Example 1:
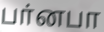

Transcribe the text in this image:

பர்னபா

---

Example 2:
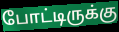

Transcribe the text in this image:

போட்டிருக்கு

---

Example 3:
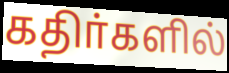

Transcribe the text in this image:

கதிர்களில்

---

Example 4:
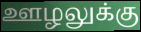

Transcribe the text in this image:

ஊழலுக்கு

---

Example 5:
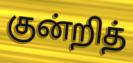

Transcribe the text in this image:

குன்றித்